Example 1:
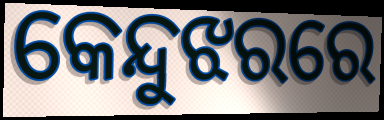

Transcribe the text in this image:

କେନ୍ଦୁଝରରେ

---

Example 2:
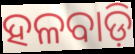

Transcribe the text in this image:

ହଳବାଡ଼ି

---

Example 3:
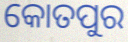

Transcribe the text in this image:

କୋତପୁର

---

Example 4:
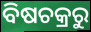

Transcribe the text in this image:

ବିଷଚକ୍ରରୁ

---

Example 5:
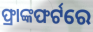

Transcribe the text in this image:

ଫ୍ରାଙ୍କଫର୍ଟରେ